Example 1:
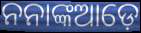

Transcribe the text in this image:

ନନାଙ୍କଆଡ଼େ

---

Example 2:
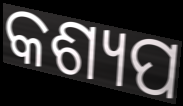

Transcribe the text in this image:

କଶ୍ୟପ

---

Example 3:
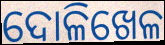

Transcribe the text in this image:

ଦୋଳିଖେଳ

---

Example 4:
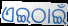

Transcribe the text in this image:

ଏଇଠାଇଁ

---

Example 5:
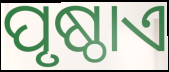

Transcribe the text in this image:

ପୃଷ୍ଠାଏ